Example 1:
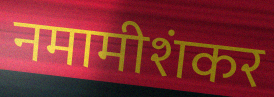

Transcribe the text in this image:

नमामीशंकर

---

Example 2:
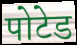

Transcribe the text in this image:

पोटेड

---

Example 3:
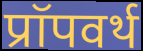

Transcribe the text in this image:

प्रॉपवर्थ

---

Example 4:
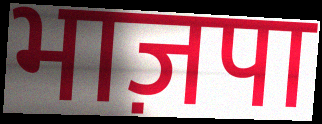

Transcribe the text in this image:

भाज़पा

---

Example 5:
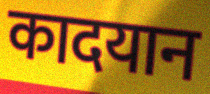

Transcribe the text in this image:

कादयान